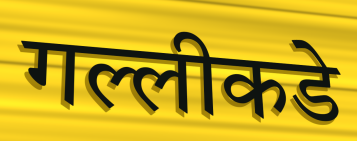
गल्लीकडे